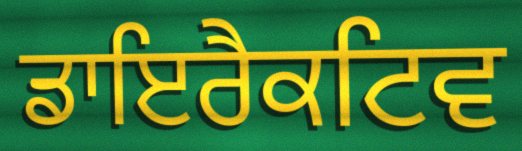
ਡਾਇਰੈਕਟਿਵ